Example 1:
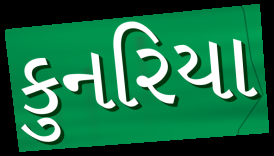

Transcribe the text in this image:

કુનરિયા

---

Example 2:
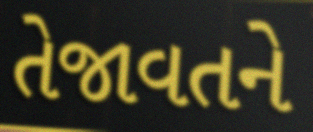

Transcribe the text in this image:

તેજાવતને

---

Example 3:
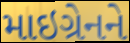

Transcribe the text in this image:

માઇગ્રેનને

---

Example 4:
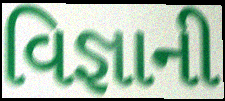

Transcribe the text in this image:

વિજ્ઞાની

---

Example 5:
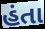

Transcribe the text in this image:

હંતા